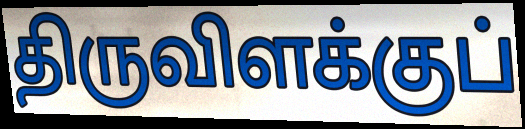
திருவிளக்குப்